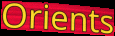
Orients